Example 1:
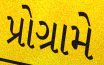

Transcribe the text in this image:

પ્રોગ્રામે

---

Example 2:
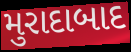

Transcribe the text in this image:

મુરાદાબાદ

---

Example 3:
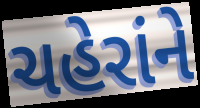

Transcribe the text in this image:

ચહેરાંને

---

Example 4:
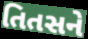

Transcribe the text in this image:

તિતસને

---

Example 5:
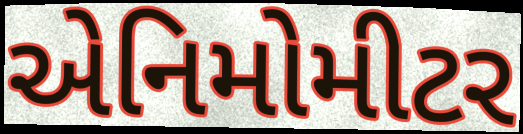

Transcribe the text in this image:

એનિમોમીટર